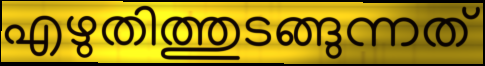
എഴുതിത്തുടങ്ങുന്നത്